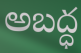
అబద్ధ